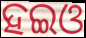
ହଇଓ